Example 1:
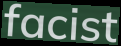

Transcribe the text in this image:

facist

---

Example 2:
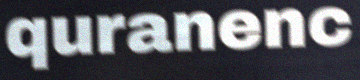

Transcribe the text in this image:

quranenc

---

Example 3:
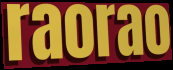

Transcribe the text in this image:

raorao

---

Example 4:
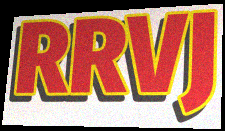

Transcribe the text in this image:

RRVJ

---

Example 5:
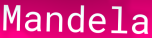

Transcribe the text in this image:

Mandela